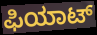
ಫಿಯಾಟ್